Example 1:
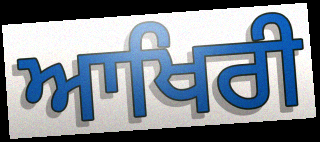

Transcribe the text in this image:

ਆਖਿਰੀ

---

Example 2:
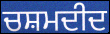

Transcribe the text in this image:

ਚਸ਼ਮਦੀਦ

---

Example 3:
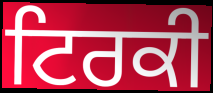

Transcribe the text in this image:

ਟਿਰਕੀ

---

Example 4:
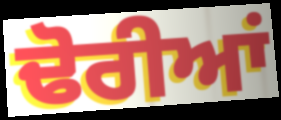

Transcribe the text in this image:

ਢੋਰੀਆਂ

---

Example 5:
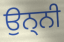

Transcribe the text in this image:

ਉਨ੍ਨੀ